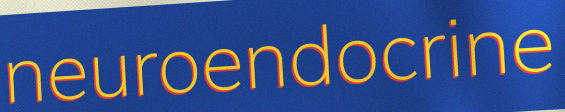
neuroendocrine